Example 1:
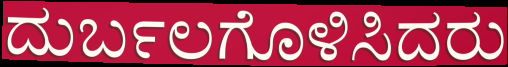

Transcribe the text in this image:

ದುರ್ಬಲಗೊಳಿಸಿದರು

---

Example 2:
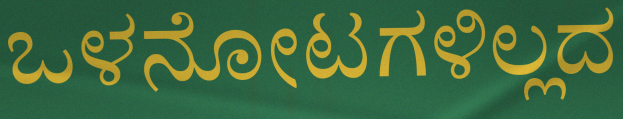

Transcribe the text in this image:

ಒಳನೋಟಗಳಿಲ್ಲದ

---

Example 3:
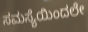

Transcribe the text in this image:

ಸಮಸ್ಯೆಯಿಂದಲೇ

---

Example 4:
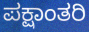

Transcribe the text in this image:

ಪಕ್ಷಾಂತರಿ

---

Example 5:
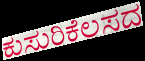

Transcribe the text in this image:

ಕುಸುರಿಕೆಲಸದ